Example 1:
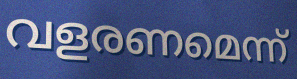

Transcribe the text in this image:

വളരണമെന്ന്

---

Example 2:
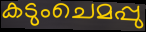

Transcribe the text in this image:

കടുംചെമപ്പു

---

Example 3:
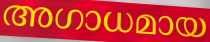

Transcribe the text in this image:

അഗാധമായ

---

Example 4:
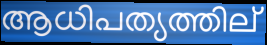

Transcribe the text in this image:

ആധിപത്യത്തില്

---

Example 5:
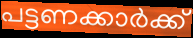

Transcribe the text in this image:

പട്ടണക്കാർക്ക്